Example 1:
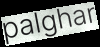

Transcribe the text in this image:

palghar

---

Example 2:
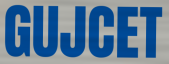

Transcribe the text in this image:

GUJCET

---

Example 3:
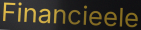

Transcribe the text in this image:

Financieele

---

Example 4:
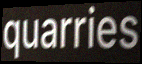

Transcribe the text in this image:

quarries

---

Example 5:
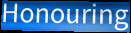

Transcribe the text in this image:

Honouring